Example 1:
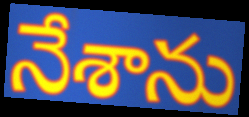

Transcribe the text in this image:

నేశాను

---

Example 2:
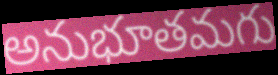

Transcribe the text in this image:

అనుభూతమగు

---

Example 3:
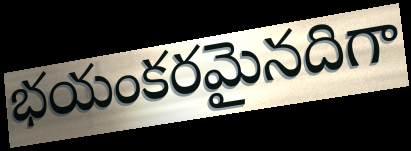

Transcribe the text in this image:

భయంకరమైనదిగా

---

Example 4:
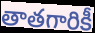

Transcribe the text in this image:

తాతగారికీ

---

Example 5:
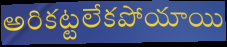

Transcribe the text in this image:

అరికట్టలేకపోయాయి